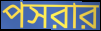
পসরার